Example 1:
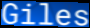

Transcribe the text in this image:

Giles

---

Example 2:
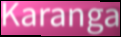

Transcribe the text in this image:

Karanga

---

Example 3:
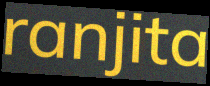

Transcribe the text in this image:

ranjita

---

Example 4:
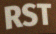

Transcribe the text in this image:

RST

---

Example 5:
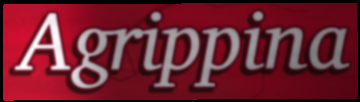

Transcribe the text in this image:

Agrippina